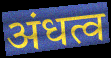
अंधत्व